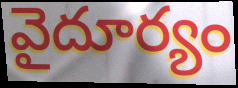
వైదూర్యం